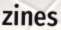
zines